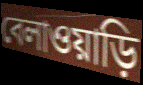
বেলাওয়াড়ি